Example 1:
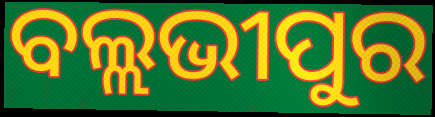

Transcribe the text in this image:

ବଲ୍ଲଭୀପୁର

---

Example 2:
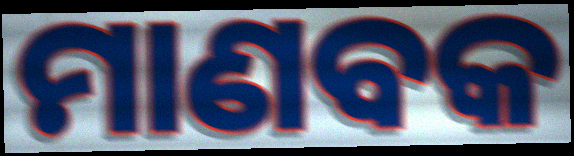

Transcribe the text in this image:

ମାଣବକ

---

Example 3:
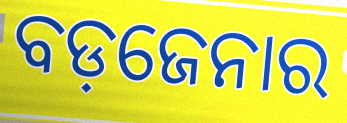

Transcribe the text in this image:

ବଡ଼ଜେନାର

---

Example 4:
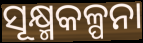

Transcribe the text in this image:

ସୂକ୍ଷ୍ମକଳ୍ପନା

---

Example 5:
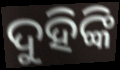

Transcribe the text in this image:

ଦୁହିଙ୍କି